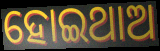
ହୋଇଥାଅ